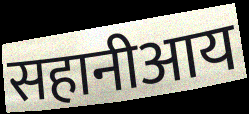
सहानीआय